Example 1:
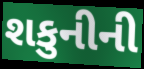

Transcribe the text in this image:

શકુનીની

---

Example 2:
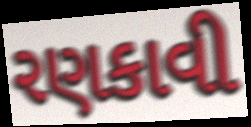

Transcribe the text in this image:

રણકાવી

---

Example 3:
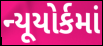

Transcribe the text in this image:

ન્યૂયોર્કમાં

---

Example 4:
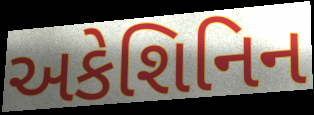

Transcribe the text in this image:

અકેશિનિન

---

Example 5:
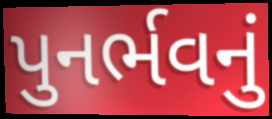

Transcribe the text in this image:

પુનર્ભવનું